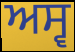
ਅਸ੍ਵ